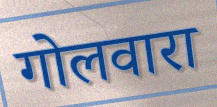
गोलवारा